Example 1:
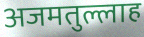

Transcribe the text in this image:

अजमतुल्लाह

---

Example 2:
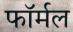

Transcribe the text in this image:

फॉर्मल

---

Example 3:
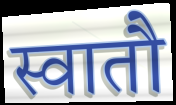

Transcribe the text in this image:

स्वातौ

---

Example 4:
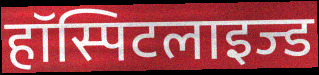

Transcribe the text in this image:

हॉस्पिटलाइज्ड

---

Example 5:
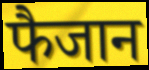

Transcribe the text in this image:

फैजान